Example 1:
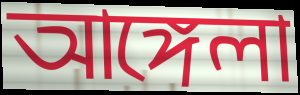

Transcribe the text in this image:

আঙ্গেলা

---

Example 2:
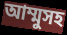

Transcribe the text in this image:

আম্মুসহ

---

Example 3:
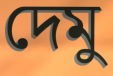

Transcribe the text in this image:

দেমু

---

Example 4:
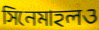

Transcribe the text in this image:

সিনেমাহলও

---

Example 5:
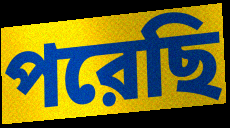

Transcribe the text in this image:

পরেছি